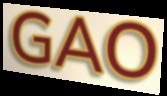
GAO